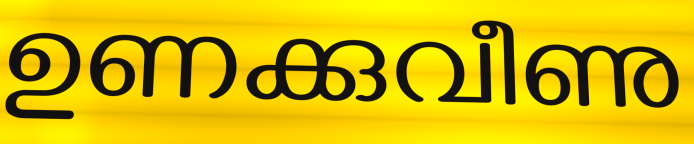
ഉണക്കുവീണു